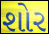
શોર